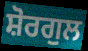
ਸ਼ੋਰਗੁਲ